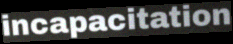
incapacitation